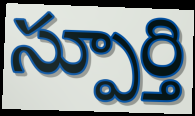
స్పూర్తి